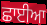
ਛਾਈਆ